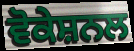
ਵੋਕੇਸ਼ਨਲ